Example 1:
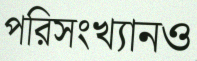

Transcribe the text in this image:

পরিসংখ্যানও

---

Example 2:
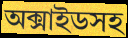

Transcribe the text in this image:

অক্সাইডসহ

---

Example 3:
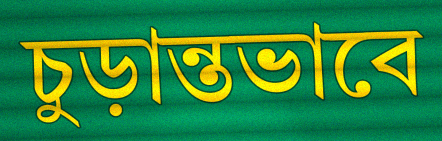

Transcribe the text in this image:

চুড়ান্তভাবে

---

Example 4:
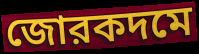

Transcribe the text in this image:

জোরকদমে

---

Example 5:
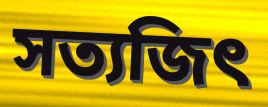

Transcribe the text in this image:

সত্যজিৎ